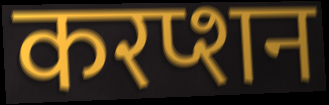
करप्‍शन